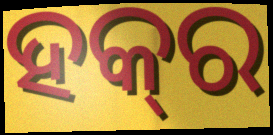
ହକ୍‌ର